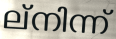
ല്നിന്ന്